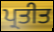
ਪ੍ਰਤੀਤ